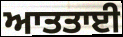
ਆਤਤਾਈ